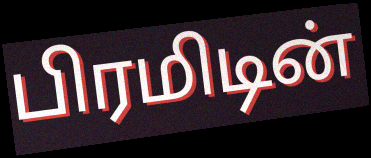
பிரமிடின்